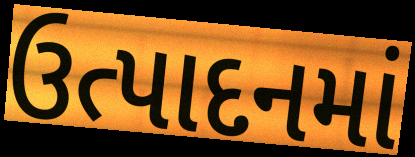
ઉત્પાદનમાં